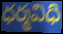
ధర్మవిధి